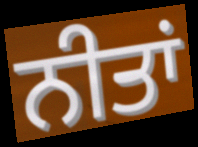
ਨੀਤਾਂ